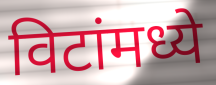
विटांमध्ये